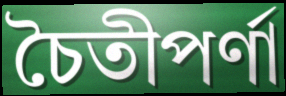
চৈতীপর্ণা